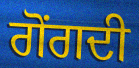
ਗੋਂਗਦੀ